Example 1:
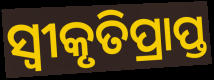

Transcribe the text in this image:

ସ୍ୱୀକୃତିପ୍ରାପ୍ତ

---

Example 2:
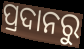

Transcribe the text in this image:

ପ୍ରଦାନରୁ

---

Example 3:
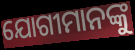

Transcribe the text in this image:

ଯୋଗୀମାନଙ୍କୁ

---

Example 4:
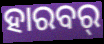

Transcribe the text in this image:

ହାରବର୍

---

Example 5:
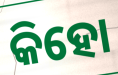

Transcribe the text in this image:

କିହୋ